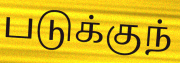
படுக்குந்